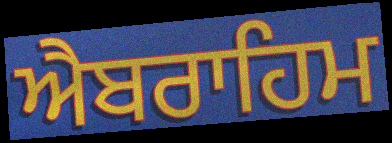
ਐਬਰਾਹਿਮ